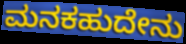
ಮನಕಹುದೇನು